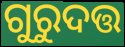
ଗୁରୁଦତ୍ତ